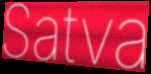
Satva